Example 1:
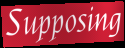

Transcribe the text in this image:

Supposing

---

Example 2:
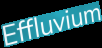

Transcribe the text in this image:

Effluvium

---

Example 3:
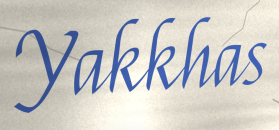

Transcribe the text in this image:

Yakkhas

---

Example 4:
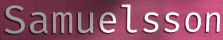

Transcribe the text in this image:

Samuelsson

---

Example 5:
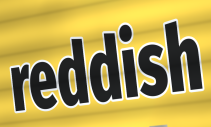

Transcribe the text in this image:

reddish